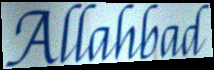
Allahbad